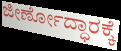
ಜೀರ್ಣೋದ್ಧಾರಕ್ಕೆ